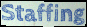
Staffing